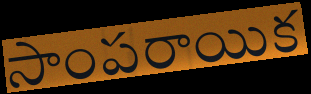
సాంపరాయిక